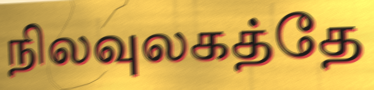
நிலவுலகத்தே